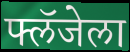
फ्लॅजेला